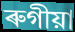
ৰুগীয়া